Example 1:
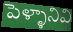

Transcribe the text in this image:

పెళ్ళానివి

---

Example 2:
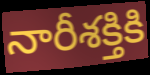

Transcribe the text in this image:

నారీశక్తికి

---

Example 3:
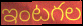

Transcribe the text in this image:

ఇంటగల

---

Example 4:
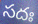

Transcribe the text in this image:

సదః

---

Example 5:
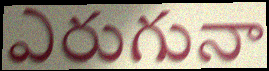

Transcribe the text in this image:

ఎరుగునా